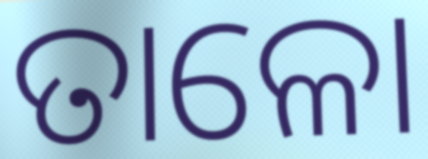
ତାଳୋ